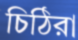
চিঠিরা